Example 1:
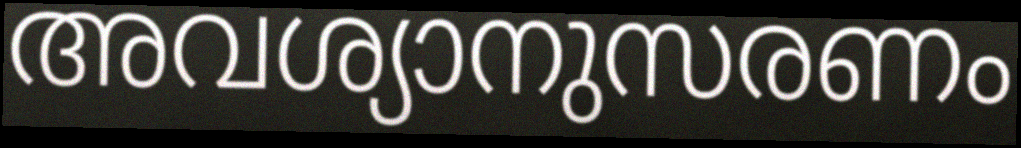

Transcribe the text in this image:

അവശ്യാനുസരണം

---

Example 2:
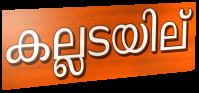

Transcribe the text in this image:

കല്ലടയില്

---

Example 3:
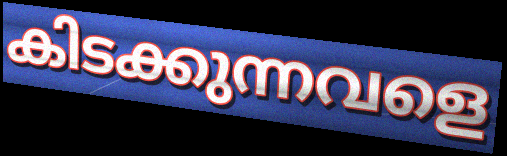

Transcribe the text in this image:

കിടക്കുന്നവളെ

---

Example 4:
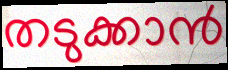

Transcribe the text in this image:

തടുക്കാൻ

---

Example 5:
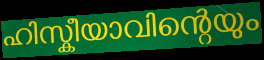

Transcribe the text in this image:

ഹിസ്കീയാവിന്റെയും